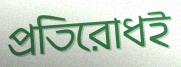
প্রতিরোধই